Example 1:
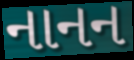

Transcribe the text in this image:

નાનન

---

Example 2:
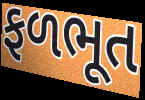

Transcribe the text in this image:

ફળભૂત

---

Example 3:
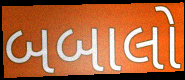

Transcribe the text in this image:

બબાલો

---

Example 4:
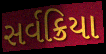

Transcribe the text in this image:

સર્વક્રિયા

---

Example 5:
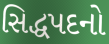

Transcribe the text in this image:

સિદ્ધપદનો